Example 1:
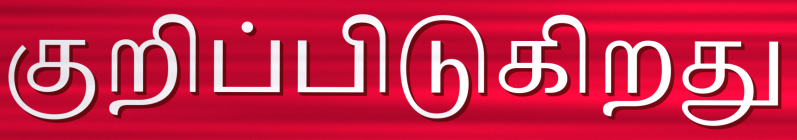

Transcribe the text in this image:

குறிப்பிடுகிறது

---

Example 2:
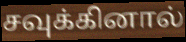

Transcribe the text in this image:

சவுக்கினால்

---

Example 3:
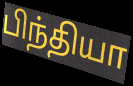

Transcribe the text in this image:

பிந்தியா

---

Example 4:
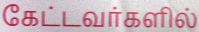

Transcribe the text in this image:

கேட்டவர்களில்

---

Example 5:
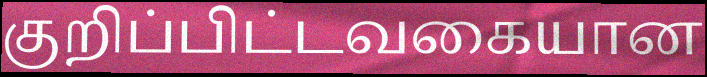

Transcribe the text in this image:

குறிப்பிட்டவகையான